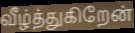
வீழ்த்துகிறேன்